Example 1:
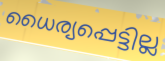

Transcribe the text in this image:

ധൈര്യപ്പെട്ടില്ല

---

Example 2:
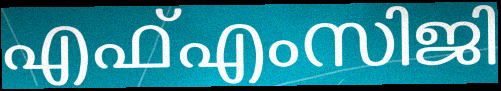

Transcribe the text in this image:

എഫ്എംസിജി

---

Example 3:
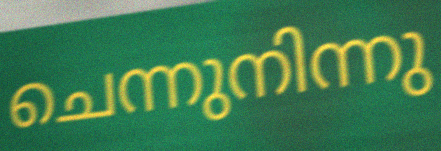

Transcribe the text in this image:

ചെന്നുനിന്നു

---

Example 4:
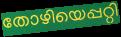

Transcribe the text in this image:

തോഴിയെപ്പറ്റി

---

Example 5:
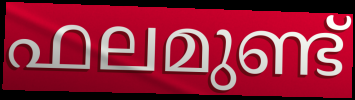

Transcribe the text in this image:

ഫലമുണ്ട്